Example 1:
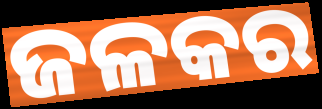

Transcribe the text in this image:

ଜଳକର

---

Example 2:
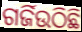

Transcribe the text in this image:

ଗର୍ଜିଉଠିଛି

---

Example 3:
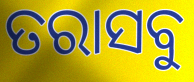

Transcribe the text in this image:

ତରାସବୁ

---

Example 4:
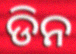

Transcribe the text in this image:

ଡିନ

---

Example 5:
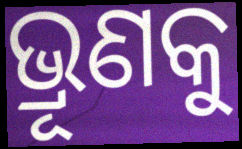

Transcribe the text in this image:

ଭ୍ରୂଣକୁ